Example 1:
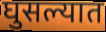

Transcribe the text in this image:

घुसल्यात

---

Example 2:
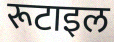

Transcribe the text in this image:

रूटाइल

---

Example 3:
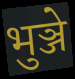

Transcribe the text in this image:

भुञ्जे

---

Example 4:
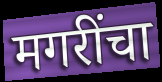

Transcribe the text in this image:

मगरींचा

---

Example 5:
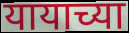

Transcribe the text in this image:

यायाच्या